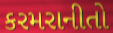
કરમરાનીતો